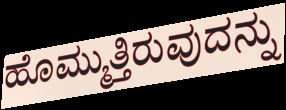
ಹೊಮ್ಮುತ್ತಿರುವುದನ್ನು